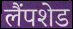
लैंपशेड